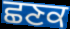
ਛਣਕ